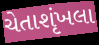
ચેતાશૃંખલા